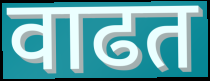
वाढत